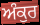
ਅੰਕੁਰ